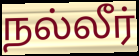
நல்லீர்